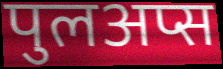
पुलअप्स